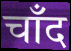
चाँद